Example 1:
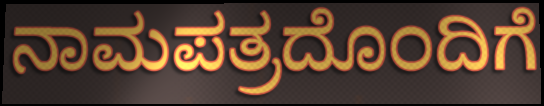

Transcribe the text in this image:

ನಾಮಪತ್ರದೊಂದಿಗೆ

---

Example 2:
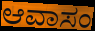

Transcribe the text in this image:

ಆವಾಸಂ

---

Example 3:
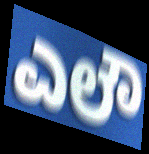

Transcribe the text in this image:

ಎಲೌ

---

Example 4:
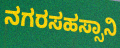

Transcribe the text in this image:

ನಗರಸಹಸ್ಸಾನಿ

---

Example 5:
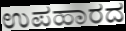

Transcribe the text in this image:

ಉಪಹಾರದ